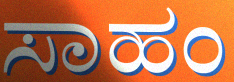
ಸಾಹಂ